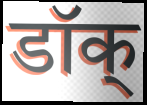
डॉक्